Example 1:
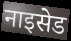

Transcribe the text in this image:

नाइसेड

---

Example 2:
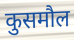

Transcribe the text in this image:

कुसमौल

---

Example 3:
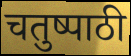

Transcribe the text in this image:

चतुष्पाठी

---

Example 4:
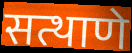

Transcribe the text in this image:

सत्थाणे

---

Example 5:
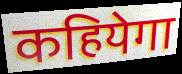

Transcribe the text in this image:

कहियेगा